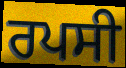
ਰਪਸੀ